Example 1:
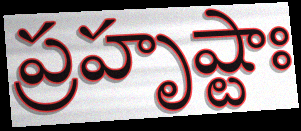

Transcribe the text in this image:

ప్రహృష్టాః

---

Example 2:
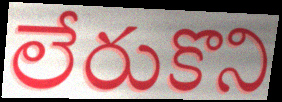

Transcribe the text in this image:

లేరుకొని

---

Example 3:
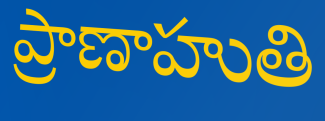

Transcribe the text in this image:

ప్రాణాహుతి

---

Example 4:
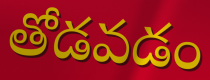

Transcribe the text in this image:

తోడవడం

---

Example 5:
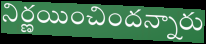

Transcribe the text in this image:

నిర్ణయించిందన్నారు